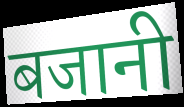
बजानी